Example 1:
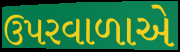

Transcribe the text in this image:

ઉપરવાળાએ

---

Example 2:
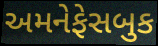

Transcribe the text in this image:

અમનેફેસબુક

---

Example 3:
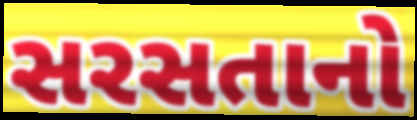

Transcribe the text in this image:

સરસતાનો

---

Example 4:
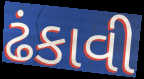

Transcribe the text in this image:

ઢંકાવી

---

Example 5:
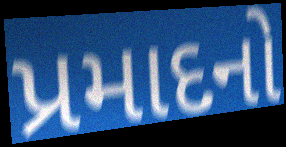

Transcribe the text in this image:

પ્રમાદનો